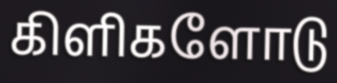
கிளிகளோடு